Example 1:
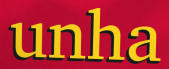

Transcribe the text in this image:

unha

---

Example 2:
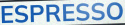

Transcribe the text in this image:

ESPRESSO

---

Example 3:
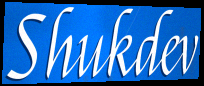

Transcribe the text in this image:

Shukdev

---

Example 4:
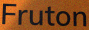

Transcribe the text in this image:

Fruton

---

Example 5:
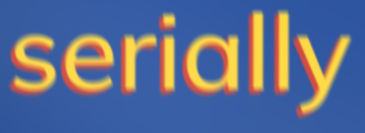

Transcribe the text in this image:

serially